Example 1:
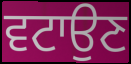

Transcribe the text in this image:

ਵਟਾਉਣ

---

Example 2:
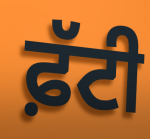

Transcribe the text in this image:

ਫ਼ੱਟੀ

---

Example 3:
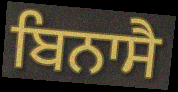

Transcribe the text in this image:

ਬਿਨਾਸੈ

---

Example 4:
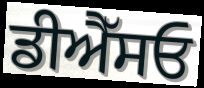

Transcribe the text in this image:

ਡੀਐੱਸਓ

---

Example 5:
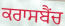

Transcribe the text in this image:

ਕਰਾਸਬੈਂਚ